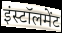
इंस्टॉलमेंट